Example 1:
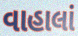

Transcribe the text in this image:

વાહાલાં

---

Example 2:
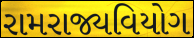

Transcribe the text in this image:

રામરાજ્યવિયોગ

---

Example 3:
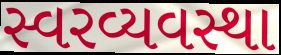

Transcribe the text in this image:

સ્વરવ્યવસ્થા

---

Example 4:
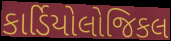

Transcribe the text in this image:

કાર્ડિયોલોજિકલ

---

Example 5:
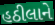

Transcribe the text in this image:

હઠીલાને